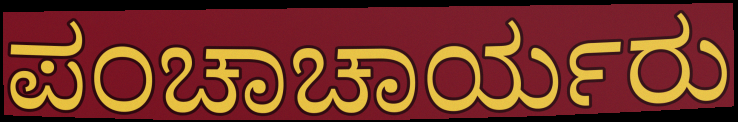
ಪಂಚಾಚಾರ್ಯರು